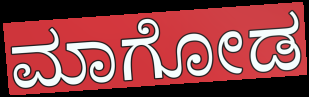
ಮಾಗೋಡ